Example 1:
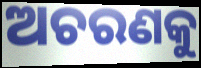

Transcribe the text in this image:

ଅଚରଣକୁ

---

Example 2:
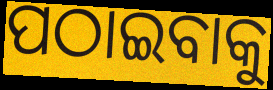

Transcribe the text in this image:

ପଠାଇବାକୁ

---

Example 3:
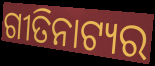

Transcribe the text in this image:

ଗୀତିନାଟ୍ୟର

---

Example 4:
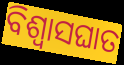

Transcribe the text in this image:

ବିଶ୍ବାସଘାତ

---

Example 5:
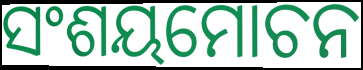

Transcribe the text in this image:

ସଂଶୟମୋଚନ